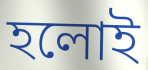
হলোই